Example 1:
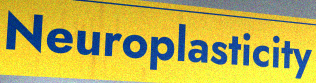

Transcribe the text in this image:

Neuroplasticity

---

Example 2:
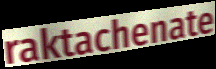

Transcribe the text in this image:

raktachenate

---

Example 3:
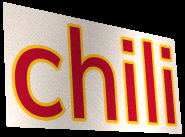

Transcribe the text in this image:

chili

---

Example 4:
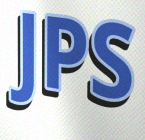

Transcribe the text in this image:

JPS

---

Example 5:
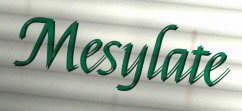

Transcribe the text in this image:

Mesylate